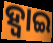
ହ୍ଵାଇ